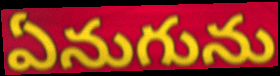
ఏనుగును